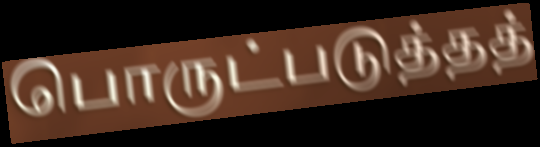
பொருட்படுத்தத்